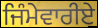
ਜਿੰਮੇਵਾਰੀਏ